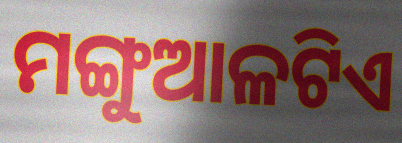
ମଙ୍ଗୁଆଳଟିଏ